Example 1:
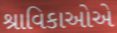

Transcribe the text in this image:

શ્રાવિકાઓએ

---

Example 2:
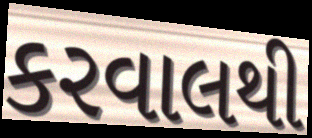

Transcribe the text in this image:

કરવાલથી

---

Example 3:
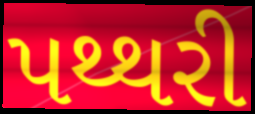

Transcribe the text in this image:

પથ્થરી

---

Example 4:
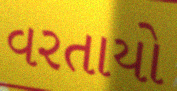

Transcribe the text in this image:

વરતાયો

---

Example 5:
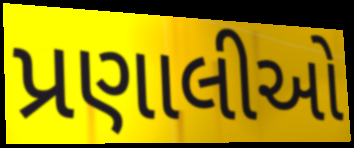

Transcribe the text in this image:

પ્રણાલીઓ